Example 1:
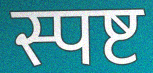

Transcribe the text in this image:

स्पष्ट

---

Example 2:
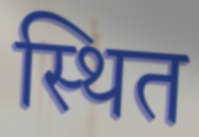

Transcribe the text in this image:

स्थित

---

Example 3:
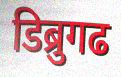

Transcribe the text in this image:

डिब्रुगढ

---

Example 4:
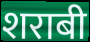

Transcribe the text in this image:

शराबी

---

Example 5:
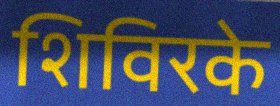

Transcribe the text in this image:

शिविरके